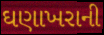
ઘણાખરાની